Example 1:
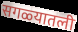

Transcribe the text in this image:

सगळ्यातली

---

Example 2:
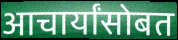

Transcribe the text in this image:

आचार्यांसोबत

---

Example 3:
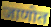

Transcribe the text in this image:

जाणोत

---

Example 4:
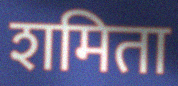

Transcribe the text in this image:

शमिता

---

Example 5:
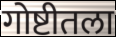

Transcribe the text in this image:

गोष्टीतला